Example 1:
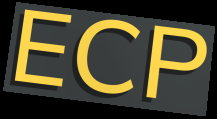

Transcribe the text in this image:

ECP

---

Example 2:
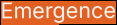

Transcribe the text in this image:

Emergence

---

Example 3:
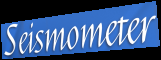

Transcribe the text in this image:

Seismometer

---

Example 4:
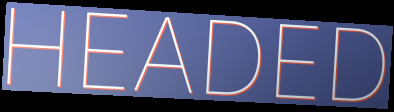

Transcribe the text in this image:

HEADED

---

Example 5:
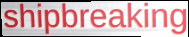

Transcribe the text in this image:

shipbreaking